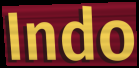
Indo